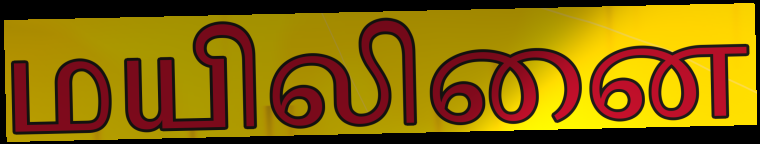
மயிலினை